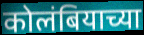
कोलंबियाच्या